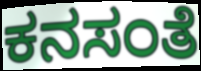
ಕನಸಂತೆ